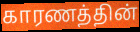
காரணத்தின்